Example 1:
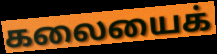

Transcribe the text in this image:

கலையைக்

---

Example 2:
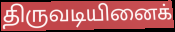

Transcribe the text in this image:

திருவடியினைக்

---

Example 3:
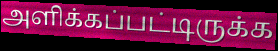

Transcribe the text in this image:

அளிக்கப்பட்டிருக்க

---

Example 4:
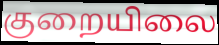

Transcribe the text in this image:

குறையிலை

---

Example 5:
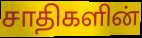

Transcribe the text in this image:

சாதிகளின்